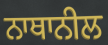
ਨਾਥਾਨੀਲ